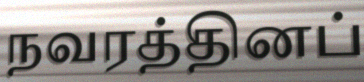
நவரத்தினப்